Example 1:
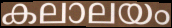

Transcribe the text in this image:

കലാലയം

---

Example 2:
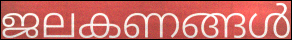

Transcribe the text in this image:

ജലകണങ്ങൾ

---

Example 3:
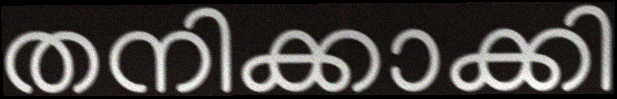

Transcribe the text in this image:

തനിക്കാക്കി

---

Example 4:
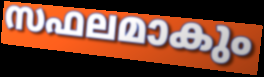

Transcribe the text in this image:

സഫലമാകും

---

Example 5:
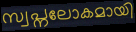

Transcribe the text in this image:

സ്വപ്നലോകമായി